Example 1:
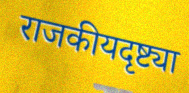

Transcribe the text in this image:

राजकीयदृष्ट्या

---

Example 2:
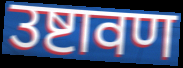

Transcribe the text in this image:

उष्टावण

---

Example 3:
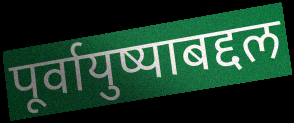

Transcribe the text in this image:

पूर्वायुष्याबद्दल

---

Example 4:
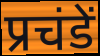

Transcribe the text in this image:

प्रचंडें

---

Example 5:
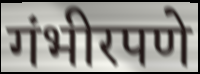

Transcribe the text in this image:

गंभीरपणे